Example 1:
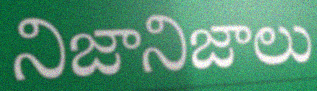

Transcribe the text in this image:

నిజానిజాలు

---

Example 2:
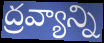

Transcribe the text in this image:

ద్రవ్యాన్ని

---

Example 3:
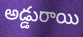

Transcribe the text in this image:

అడ్డురాయి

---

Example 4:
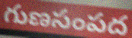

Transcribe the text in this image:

గుణసంపద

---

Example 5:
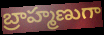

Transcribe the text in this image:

బ్రాహ్మణుగా